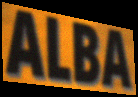
ALBA